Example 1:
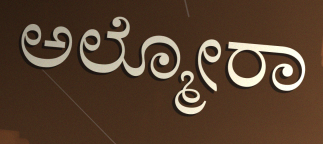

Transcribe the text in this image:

ಅಲ್ಮೋರಾ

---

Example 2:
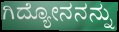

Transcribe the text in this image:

ಗಿದ್ಯೋನನನ್ನು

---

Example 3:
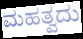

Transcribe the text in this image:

ಮಹತ್ವದು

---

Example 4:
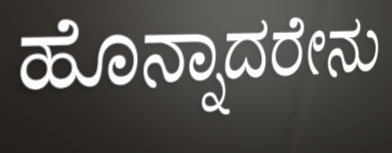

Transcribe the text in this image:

ಹೊನ್ನಾದರೇನು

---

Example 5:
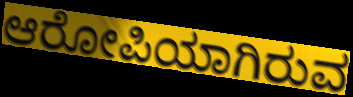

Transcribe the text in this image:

ಆರೋಪಿಯಾಗಿರುವ